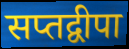
सप्तद्वीपा